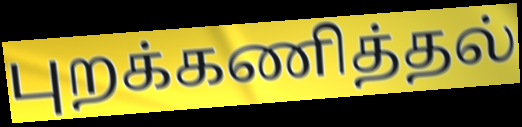
புறக்கணித்தல்